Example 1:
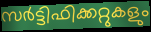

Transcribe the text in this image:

സർട്ടിഫിക്കറ്റുകളും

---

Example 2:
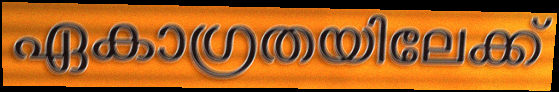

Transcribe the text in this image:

ഏകാഗ്രതയിലേക്ക്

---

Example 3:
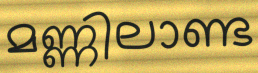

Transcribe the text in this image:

മണ്ണിലാണ്ട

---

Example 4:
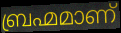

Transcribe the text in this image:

ബ്രഹ്മമാണ്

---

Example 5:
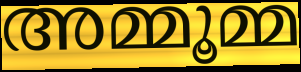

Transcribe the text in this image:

അമ്മൂമ്മ